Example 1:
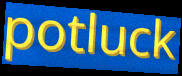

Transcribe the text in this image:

potluck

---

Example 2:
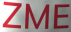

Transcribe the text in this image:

ZME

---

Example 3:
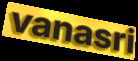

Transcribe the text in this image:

vanasri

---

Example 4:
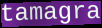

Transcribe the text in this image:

tamagra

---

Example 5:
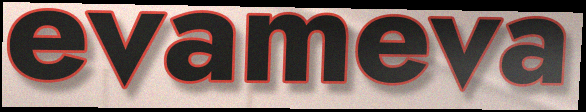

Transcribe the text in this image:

evameva